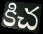
కిచ